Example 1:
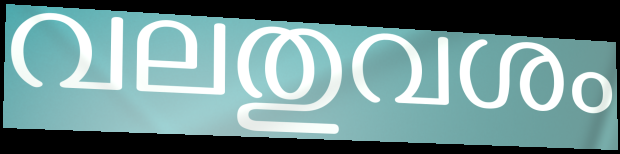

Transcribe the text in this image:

വലതുവശം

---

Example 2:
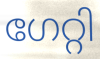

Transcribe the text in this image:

ഗേറ്റി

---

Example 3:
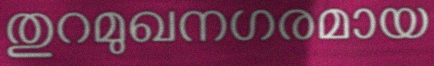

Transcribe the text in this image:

തുറമുഖനഗരമായ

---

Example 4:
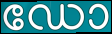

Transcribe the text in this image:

ഡോ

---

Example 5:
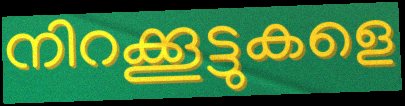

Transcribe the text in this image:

നിറക്കൂട്ടുകളെ